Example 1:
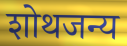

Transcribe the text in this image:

शोथजन्य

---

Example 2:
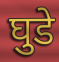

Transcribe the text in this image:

घुडे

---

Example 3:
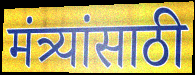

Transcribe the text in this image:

मंत्र्यांसाठी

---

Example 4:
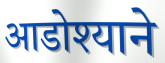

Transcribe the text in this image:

आडोश्याने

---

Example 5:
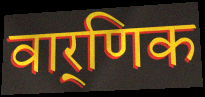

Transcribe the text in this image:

वार्णिक